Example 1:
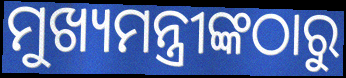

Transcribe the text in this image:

ମୁଖ୍ୟମନ୍ତ୍ରୀଙ୍କଠାରୁ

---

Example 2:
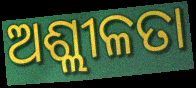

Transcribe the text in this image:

ଅଶ୍ଲୀଳତା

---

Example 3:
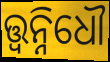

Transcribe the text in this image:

ତ୍ତ୍ଵନ୍ନିଧୌ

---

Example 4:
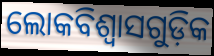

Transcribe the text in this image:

ଲୋକବିଶ୍ୱାସଗୁଡ଼ିକ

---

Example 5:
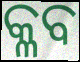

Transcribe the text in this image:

କ୍ଳବ